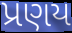
પ્રણય